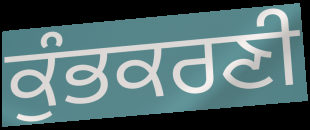
ਕੁੰਭਕਰਣੀ